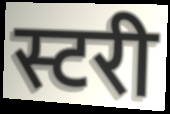
स्टरी